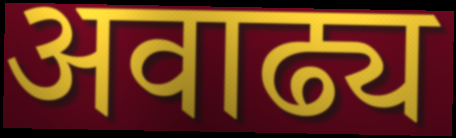
अवाढ्य